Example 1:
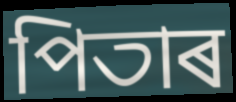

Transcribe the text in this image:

পিতাৰ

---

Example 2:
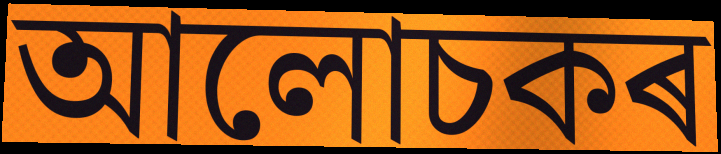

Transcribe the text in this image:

আলোচকৰ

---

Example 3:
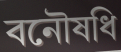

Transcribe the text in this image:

বনৌষধি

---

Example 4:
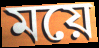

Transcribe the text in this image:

ময়ে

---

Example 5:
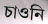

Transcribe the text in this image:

চাওনি